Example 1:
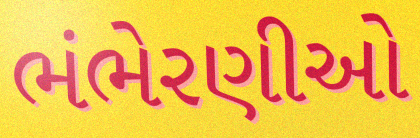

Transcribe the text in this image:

ભંભેરણીઓ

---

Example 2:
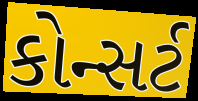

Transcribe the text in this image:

કોન્સર્ટ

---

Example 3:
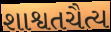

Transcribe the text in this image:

શાશ્વતચૈત્ય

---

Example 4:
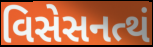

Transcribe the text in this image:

વિસેસનત્થં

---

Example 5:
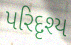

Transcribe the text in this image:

પરિદૃશ્ય